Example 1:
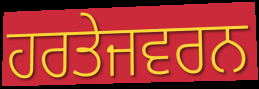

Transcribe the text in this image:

ਹਰਤੇਜਵਰਨ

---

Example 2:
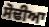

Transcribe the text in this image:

ਸੋਢੀਆ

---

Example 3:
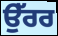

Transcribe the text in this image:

ਉੱਰਰ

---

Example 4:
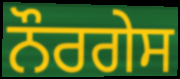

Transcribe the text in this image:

ਨੌਰਗੇਸ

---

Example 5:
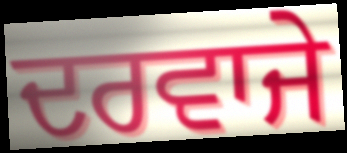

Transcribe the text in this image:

ਦਰਵਾਜੇ